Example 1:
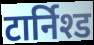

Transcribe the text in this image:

टार्निश्ड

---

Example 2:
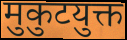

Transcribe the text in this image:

मुकुटयुक्त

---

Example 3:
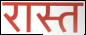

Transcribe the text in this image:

रास्त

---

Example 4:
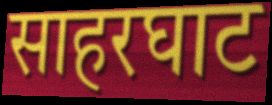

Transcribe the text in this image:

साहरघाट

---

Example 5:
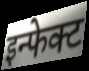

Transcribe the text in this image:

इन्फेक्ट